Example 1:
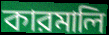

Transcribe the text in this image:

কারমালি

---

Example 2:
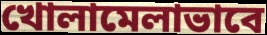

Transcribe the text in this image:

খোলামেলাভাবে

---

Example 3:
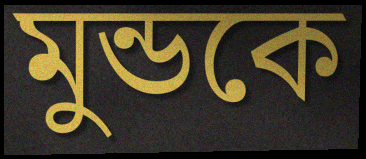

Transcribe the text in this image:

মুন্ডকে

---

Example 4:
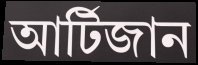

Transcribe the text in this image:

আর্টিজান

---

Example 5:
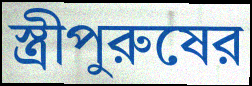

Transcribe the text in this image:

স্ত্রীপুরুষের